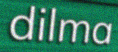
dilma